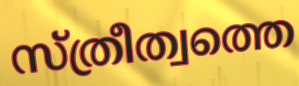
സ്ത്രീത്വത്തെ